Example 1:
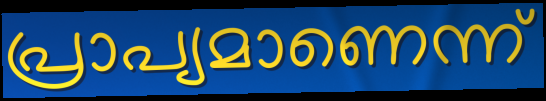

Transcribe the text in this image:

പ്രാപ്യമാണെന്ന്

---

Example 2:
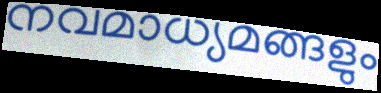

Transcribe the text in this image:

നവമാധ്യമങ്ങളും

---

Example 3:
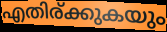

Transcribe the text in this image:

എതിര്ക്കുകയും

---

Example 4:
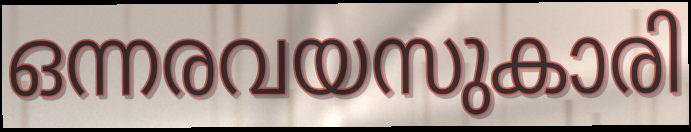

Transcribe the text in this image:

ഒന്നരവയസുകാരി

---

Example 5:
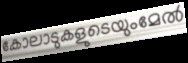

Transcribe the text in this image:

കോലാടുകളുടെയുംമേൽ